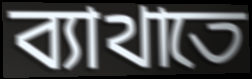
ব্যাথাতে